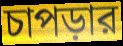
চাপড়ার